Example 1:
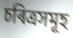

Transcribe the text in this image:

চৰিত্ৰসমূহ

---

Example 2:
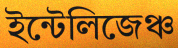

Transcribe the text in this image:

ইন্টেলিজেঞ্চ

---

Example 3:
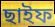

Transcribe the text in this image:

ছাইফ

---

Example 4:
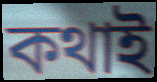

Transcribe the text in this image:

কথাই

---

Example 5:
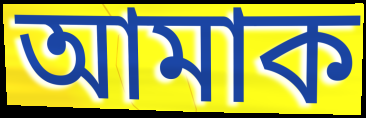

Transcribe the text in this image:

আমাক